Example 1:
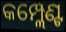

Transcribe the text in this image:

କମ୍ପ୍ଲେଣ୍ଟ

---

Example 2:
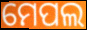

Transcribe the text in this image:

ମେପଲ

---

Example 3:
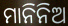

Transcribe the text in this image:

ମାନିନିଅ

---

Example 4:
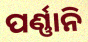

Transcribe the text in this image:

ପର୍ଣ୍ଣାନି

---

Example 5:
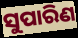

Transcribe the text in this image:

ସୁପାରିଣ